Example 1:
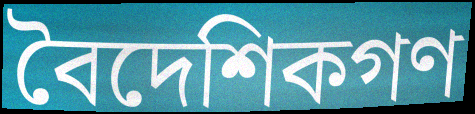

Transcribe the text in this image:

বৈদেশিকগণ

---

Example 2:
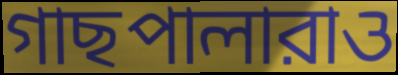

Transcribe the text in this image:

গাছপালারাও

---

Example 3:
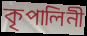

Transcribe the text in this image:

কৃপালিনী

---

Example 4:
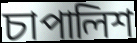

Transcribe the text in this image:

চাপালিশ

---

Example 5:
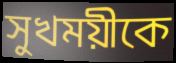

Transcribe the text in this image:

সুখময়ীকে